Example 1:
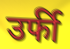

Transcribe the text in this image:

उर्फी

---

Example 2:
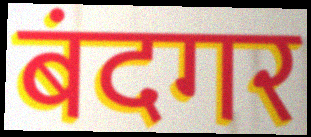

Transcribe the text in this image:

बंदगर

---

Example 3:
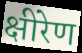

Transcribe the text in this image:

क्षीरेण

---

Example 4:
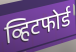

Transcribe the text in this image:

व्हिटफोर्ड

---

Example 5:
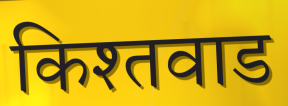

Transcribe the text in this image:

किश्तवाड